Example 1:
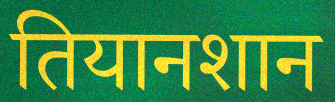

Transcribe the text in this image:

तियानशान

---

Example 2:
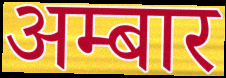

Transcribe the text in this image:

अम्बार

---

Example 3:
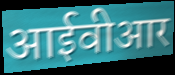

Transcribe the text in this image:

आईवीआर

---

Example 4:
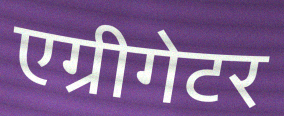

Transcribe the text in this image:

एग्रीगेटर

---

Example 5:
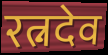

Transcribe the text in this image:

रत्नदेव